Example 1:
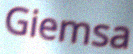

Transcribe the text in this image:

Giemsa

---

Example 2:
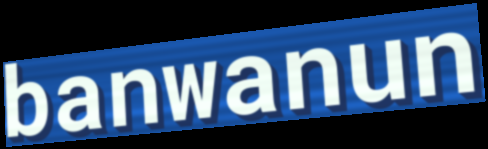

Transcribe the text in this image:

banwanun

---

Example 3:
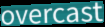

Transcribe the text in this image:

overcast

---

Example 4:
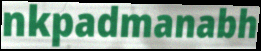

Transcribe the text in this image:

nkpadmanabh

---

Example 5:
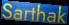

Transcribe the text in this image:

Sarthak